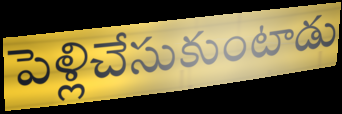
పెళ్లిచేసుకుంటాడు